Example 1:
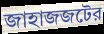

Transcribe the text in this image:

জাহাজজটের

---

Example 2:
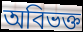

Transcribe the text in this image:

অবিভক্ত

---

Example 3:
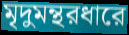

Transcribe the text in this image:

মৃদুমন্থরধারে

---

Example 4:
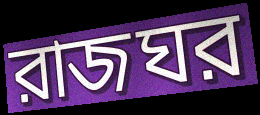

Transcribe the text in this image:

রাজঘর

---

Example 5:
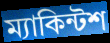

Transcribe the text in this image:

ম্যাকিন্টশ